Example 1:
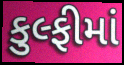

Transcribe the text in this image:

કુલ્ફીમાં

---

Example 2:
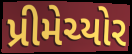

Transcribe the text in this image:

પ્રીમેચ્યોર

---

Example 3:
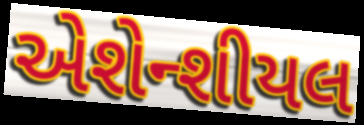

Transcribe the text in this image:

એશેન્શીયલ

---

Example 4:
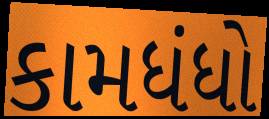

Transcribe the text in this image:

કામધંધો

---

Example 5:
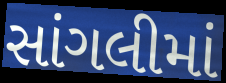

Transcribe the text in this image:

સાંગલીમાં